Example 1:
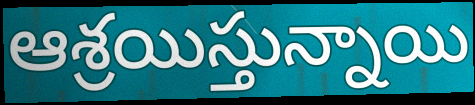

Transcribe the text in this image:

ఆశ్రయిస్తున్నాయి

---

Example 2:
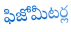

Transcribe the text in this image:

ఫిజోమీటర్ల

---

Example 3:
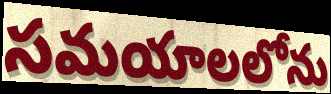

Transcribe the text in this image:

సమయాలలోను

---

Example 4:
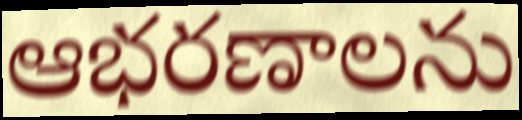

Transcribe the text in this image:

ఆభరణాలను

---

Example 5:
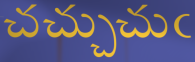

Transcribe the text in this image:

చచ్చుచుఁ